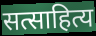
सत्साहित्य